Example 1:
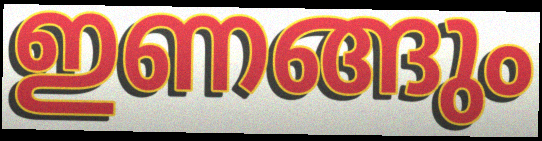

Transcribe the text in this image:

ഇണങ്ങും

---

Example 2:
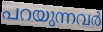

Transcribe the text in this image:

പറയുന്നവർ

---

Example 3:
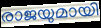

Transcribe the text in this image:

രാജയുമായി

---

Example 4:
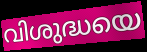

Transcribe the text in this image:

വിശുദ്ധയെ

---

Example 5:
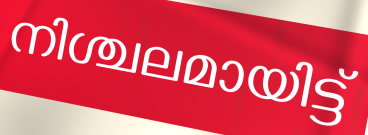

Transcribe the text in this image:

നിശ്ചലമായിട്ട്